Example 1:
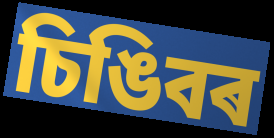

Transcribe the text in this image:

চিঙিবৰ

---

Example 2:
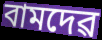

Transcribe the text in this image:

বামদেৱ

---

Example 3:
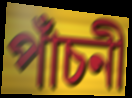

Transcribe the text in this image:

পাঁচনী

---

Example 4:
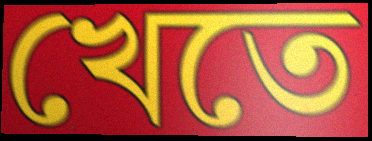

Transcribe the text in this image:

খেতে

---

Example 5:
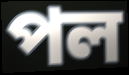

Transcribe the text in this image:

পল